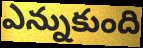
ఎన్నుకుంది